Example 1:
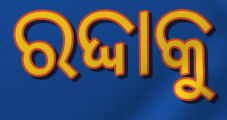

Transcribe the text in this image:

ରଦ୍ଦାକୁ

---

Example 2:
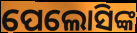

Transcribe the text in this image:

ପେଲୋସିଙ୍କ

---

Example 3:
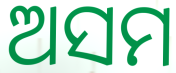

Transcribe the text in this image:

ଅସମ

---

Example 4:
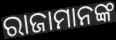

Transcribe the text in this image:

ରାଜାମାନଙ୍କ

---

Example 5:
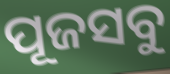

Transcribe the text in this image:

ପୂଜସବୁ